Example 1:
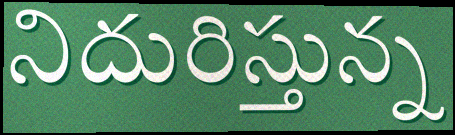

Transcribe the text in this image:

నిదురిస్తున్న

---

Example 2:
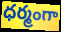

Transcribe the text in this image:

ధర్మంగా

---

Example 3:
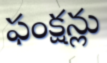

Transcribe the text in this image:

ఫంక్షన్లు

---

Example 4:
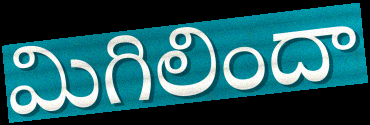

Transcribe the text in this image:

మిగిలిందా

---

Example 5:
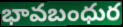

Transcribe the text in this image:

భావబంధుర